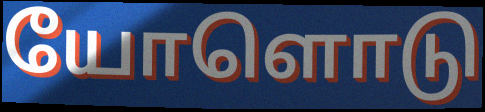
யோளொடு